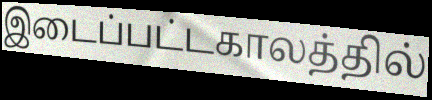
இடைப்பட்டகாலத்தில்